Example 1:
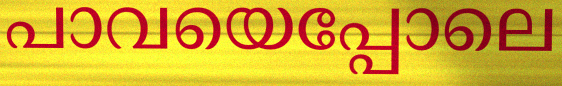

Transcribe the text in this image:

പാവയെപ്പോലെ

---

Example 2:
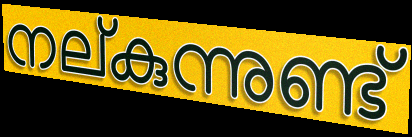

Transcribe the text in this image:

നല്കുന്നുണ്ട്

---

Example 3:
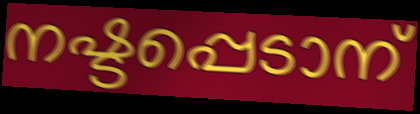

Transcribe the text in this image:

നഷ്ടപ്പെടാന്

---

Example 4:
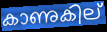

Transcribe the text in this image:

കാണുകില്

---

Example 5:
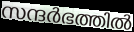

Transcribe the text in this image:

സന്ദർഭത്തിൽ